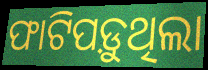
ଫାଟିପଡ଼ୁଥିଲା